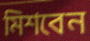
মিশবেন